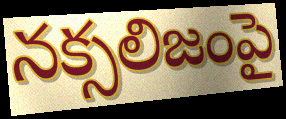
నక్సలిజంపై